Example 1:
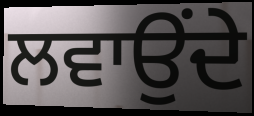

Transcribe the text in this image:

ਲਵਾਉਂਦੇ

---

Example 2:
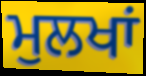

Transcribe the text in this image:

ਮੁਲਖਾਂ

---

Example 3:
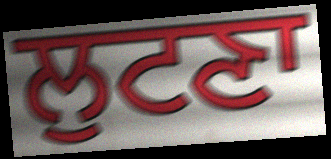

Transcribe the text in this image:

ਲੁਟਣਾ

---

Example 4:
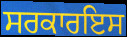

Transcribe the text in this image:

ਸਰਕਾਰਇਸ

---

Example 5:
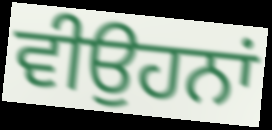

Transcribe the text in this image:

ਵੀਉਹਨਾਂ